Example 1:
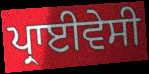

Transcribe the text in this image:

ਪ੍ਰਾਈਵੇਸੀ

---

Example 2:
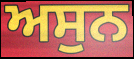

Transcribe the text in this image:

ਅਸੁਨ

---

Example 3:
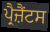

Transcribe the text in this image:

ਪ੍ਰੈਜ਼ੈਂਟਸ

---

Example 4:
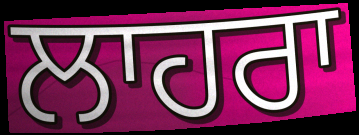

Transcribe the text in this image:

ਲਾਹਰਾ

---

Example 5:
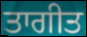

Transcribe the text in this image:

ਤਾਗੀਤ